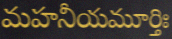
మహనీయమూర్తిః